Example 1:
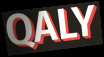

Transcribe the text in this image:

QALY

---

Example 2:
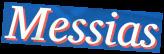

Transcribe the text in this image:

Messias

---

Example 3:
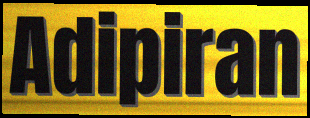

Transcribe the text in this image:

Adipiran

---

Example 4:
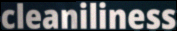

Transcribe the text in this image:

cleaniliness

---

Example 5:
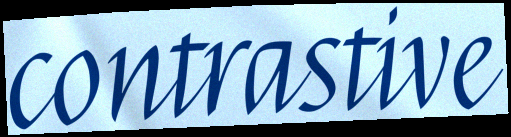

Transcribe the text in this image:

contrastive